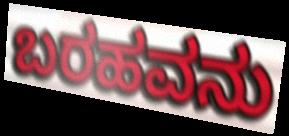
ಬರಹವನು